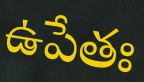
ఉపేతః